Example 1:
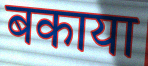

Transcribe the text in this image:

बकाया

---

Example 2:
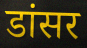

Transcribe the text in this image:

डांसर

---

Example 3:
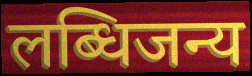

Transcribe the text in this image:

लब्धिजन्य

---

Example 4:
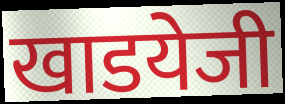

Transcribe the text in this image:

खाडयेजी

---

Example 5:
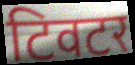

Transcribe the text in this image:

टिवटर